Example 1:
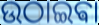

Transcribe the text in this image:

ଉଠାଇଵା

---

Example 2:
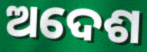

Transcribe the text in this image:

ଅଦେଶ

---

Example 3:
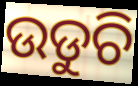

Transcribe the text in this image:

ଉଡୁଚି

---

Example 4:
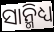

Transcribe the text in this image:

ସାନ୍ମିଧ୍ୟ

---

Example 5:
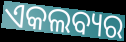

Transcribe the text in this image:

ଏକଲବ୍ୟର